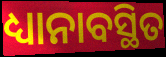
ଧ୍ୟାନାବସ୍ଥିତ